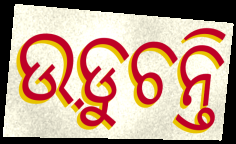
ଉଡ଼ୁଚନ୍ତି